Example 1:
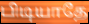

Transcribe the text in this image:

பிடியாதே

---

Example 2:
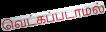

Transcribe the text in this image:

வெட்கப்படாமல்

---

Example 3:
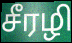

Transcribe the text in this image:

சீரழி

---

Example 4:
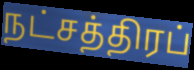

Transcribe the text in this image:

நட்சத்திரப்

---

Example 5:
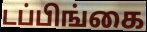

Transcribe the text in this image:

டப்பிங்கை